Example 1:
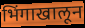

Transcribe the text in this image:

भिंगाखालून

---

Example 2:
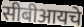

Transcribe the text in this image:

सीबीआयचे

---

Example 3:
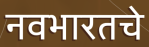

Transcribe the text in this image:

नवभारतचे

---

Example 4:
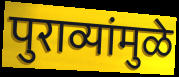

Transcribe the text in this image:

पुराव्यांमुळे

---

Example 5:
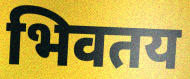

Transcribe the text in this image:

भिवतय